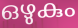
ഒഴുകും